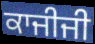
ਕਾਜੀਜੀ